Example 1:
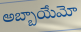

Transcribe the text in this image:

అబ్బాయేమో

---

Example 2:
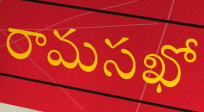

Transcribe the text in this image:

రామసఖో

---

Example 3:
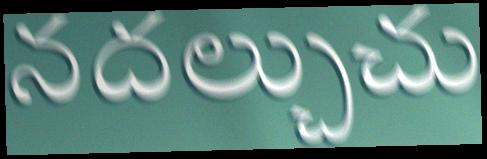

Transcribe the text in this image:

నదల్చుచు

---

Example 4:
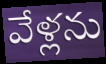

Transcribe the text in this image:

వేళ్లను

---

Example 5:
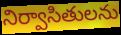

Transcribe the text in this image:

నిర్వాసితులను